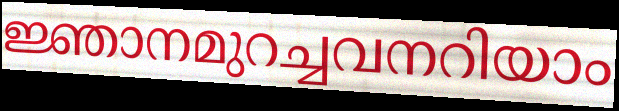
ജ്ഞാനമുറച്ചവനറിയാം